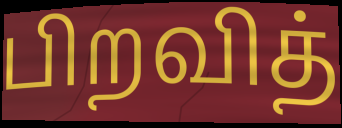
பிறவித்